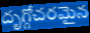
దృగ్గోచరమైన